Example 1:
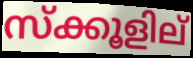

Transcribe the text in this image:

സ്ക്കൂളില്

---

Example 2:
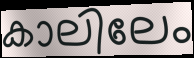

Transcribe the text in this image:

കാലിലേം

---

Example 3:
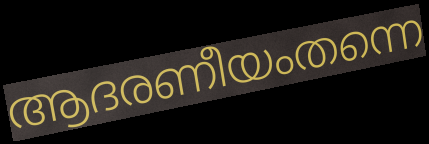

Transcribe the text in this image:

ആദരണീയംതന്നെ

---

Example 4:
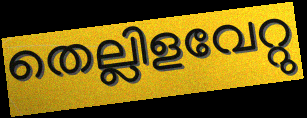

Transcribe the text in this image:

തെല്ലിളവേറ്റു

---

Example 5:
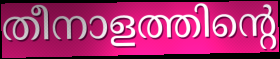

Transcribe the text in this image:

തീനാളത്തിന്റെ